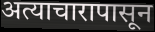
अत्याचारापासून